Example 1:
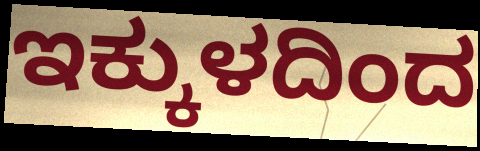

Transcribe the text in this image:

ಇಕ್ಕುಳದಿಂದ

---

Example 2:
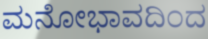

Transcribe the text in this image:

ಮನೋಭಾವದಿಂದ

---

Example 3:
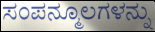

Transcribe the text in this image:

ಸಂಪನ್ಮೂಲಗಳನ್ನು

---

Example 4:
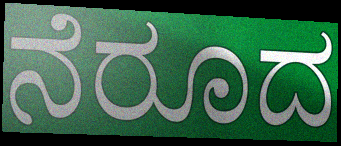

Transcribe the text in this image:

ನೆರೂದ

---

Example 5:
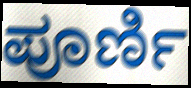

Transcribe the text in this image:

ಪೂರ್ಣಿ